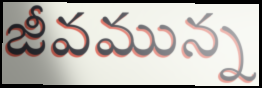
జీవమున్న